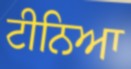
ਟੀਨਿਆ